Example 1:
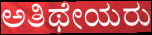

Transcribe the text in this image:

ಅತಿಥೇಯರು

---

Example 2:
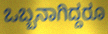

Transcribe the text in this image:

ಒಬ್ಬನಾಗಿದ್ದರೂ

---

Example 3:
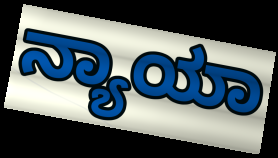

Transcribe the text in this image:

ನ್ಯಾಯಾ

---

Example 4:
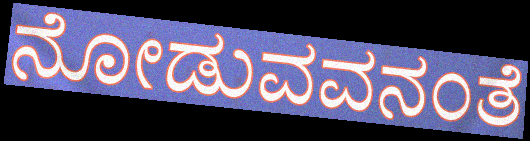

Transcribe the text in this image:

ನೋಡುವವನಂತೆ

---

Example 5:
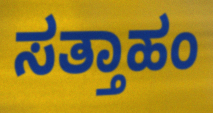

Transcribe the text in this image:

ಸತ್ತಾಹಂ